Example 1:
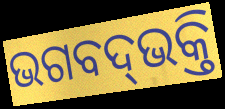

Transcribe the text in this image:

ଭଗବଦ୍‌ଭକ୍ତି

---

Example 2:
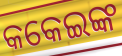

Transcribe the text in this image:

କକେଇଙ୍କ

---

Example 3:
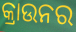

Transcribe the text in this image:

କ୍ରାଉନର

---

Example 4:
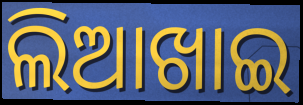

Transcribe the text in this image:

ଲିଆଖାଇ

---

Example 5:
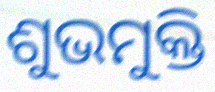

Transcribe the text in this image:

ଶୁଭମୁକ୍ତି